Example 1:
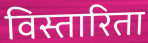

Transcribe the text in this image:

विस्तारिता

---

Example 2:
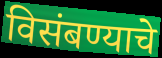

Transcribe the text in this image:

विसंबण्याचे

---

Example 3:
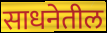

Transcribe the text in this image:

साधनेतील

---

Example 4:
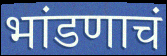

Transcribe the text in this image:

भांडणाचं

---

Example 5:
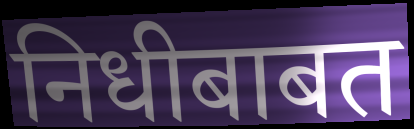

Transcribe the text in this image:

निधीबाबत